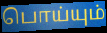
பொய்யும்